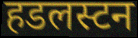
हडलस्टन